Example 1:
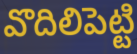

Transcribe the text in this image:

వొదిలిపెట్టి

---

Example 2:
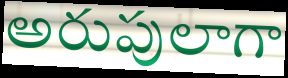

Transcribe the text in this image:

అరుపులాగా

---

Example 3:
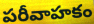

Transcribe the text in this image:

పరీవాహకం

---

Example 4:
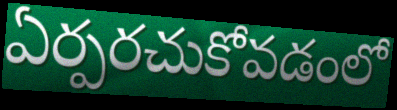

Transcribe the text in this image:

ఏర్పరచుకోవడంలో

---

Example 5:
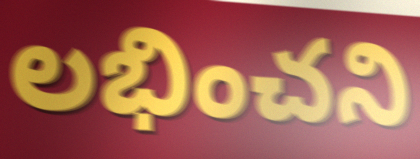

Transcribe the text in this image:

లభించని